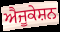
ਐਜੂਕੇਸ਼ਨ